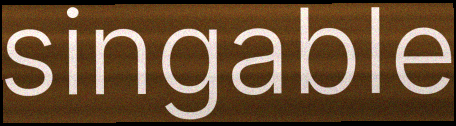
singable